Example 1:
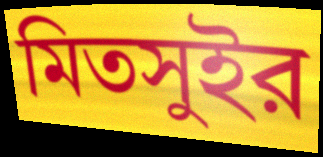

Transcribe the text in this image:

মিতসুইর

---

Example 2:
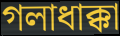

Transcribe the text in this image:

গলাধাক্কা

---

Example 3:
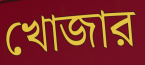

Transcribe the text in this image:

খোজার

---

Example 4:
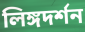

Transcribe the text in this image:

লিঙ্গদর্শন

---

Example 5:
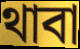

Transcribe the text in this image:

থাবা